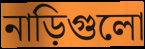
নাড়িগুলো